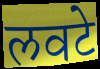
लवटे